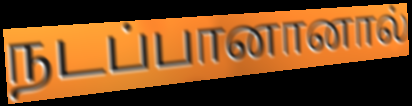
நடப்பானானால்